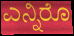
ಎನ್ನಿರೊ